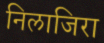
निलाजिरा